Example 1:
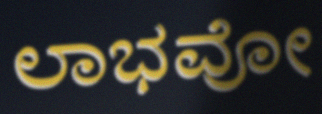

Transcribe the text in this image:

ಲಾಭವೋ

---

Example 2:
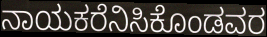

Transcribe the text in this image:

ನಾಯಕರೆನಿಸಿಕೊಂಡವರ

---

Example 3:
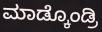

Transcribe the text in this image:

ಮಾಡ್ಕೊಂಡ್ರಿ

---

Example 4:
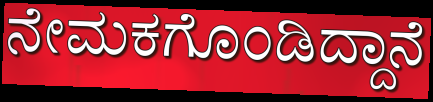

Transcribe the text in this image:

ನೇಮಕಗೊಂಡಿದ್ದಾನೆ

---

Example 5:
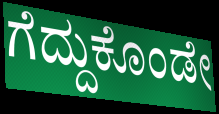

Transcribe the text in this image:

ಗೆದ್ದುಕೊಂಡೇ